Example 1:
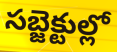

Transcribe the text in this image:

సబ్జెక్టుల్లో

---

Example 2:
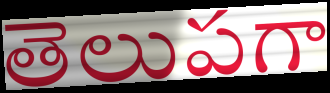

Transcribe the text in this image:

తెలుపగా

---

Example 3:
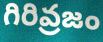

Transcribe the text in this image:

గిరివ్రజం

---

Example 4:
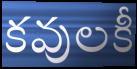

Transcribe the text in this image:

కవులకీ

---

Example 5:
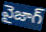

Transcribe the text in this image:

వైజాగ్